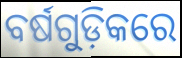
ବର୍ଷଗୁଡ଼ିକରେ